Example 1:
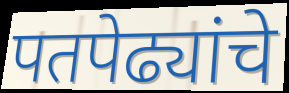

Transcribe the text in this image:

पतपेढ्यांचे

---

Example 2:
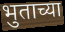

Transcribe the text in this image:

भुताच्या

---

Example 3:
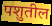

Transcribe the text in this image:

पशुतील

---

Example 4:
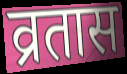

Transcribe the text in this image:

व्रतास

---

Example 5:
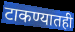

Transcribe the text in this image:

टाकण्यातही